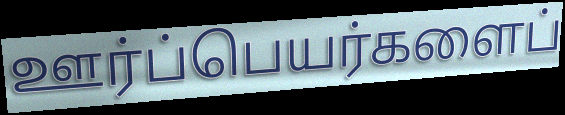
ஊர்ப்பெயர்களைப்